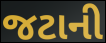
જટાની